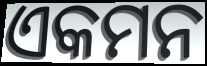
ଏକମନ